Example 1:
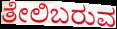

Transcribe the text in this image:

ತೇಲಿಬರುವ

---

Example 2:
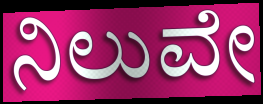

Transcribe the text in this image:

ನಿಲುವೇ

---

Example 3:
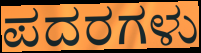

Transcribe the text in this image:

ಪದರಗಳು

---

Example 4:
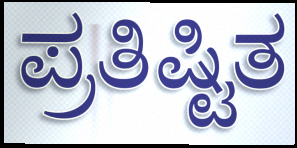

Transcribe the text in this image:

ಪ್ರತಿಷ್ಟಿತ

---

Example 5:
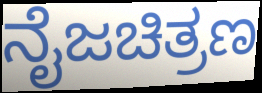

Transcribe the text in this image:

ನೈಜಚಿತ್ರಣ